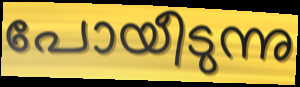
പോയീടുന്നു